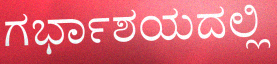
ಗರ್ಭಾಶಯದಲ್ಲಿ